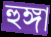
হুঙ্গা